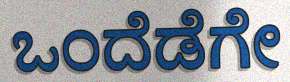
ಒಂದೆಡೆಗೇ